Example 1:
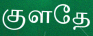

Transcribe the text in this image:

குளதே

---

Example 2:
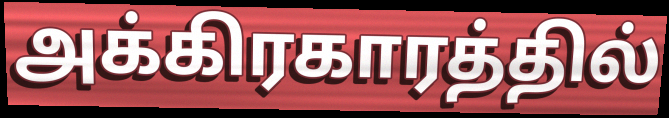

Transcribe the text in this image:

அக்கிரகாரத்தில்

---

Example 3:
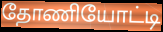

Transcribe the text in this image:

தோணியோட்டி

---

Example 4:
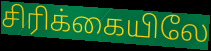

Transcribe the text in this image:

சிரிக்கையிலே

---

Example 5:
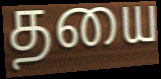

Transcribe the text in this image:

தயை